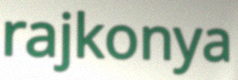
rajkonya